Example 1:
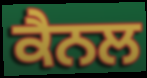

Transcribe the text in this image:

ਕੈਨਲ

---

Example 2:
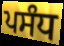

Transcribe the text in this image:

ਪਸੰਧ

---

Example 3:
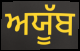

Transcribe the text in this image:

ਅਯੂੱਬ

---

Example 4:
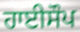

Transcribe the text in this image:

ਹਾਈਸੌਪ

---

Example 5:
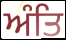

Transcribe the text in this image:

ਅੰਤਿ